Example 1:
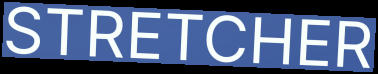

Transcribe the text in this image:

STRETCHER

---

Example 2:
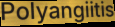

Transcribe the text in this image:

Polyangiitis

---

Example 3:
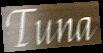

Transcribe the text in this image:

Tuna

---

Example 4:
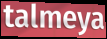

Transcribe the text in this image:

talmeya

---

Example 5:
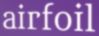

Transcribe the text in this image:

airfoil